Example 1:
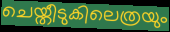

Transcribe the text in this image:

ചെയ്തീടുകിലെത്രയും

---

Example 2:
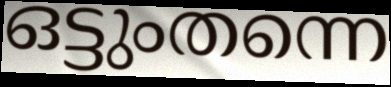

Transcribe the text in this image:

ഒട്ടുംതന്നെ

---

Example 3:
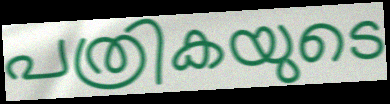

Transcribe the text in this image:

പത്രികയുടെ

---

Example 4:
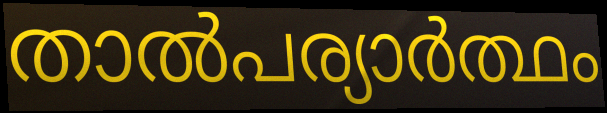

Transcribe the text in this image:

താൽപര്യാർത്ഥം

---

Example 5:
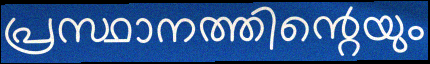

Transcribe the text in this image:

പ്രസ്ഥാനത്തിന്റെയും